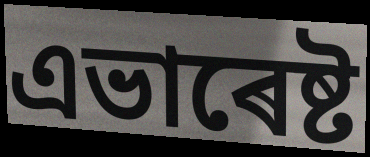
এভাৰেষ্ট